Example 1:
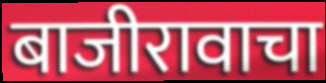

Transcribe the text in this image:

बाजीरावाचा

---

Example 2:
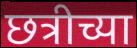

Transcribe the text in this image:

छत्रीच्या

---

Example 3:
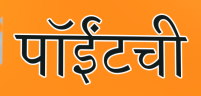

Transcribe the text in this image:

पॉईंटची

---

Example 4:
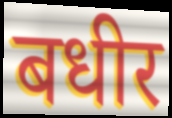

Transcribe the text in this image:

बधीर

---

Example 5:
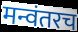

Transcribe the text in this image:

मन्वंतरच